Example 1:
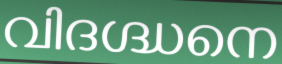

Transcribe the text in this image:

വിദഗ്ദ്ധനെ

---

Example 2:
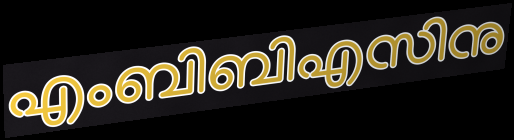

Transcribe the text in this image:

എംബിബിഎസിനു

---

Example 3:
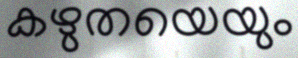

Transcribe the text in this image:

കഴുതയെയും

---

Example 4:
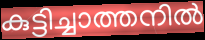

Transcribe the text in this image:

കുട്ടിച്ചാത്തനിൽ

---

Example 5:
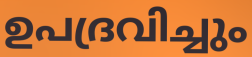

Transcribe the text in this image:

ഉപദ്രവിച്ചും